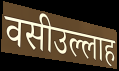
वसीउल्लाह